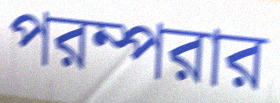
পরম্পরার